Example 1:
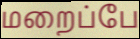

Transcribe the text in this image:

மறைப்பே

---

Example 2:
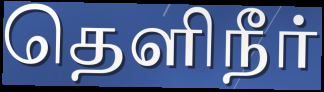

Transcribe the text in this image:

தெளிநீர்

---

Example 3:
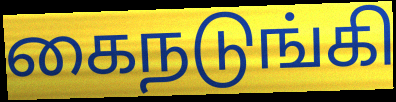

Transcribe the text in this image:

கைநடுங்கி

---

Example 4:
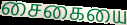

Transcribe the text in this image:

சைகையை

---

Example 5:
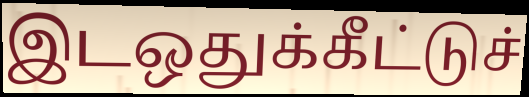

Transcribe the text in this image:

இடஒதுக்கீட்டுச்